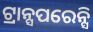
ଟ୍ରାନ୍ସପରେନ୍ସି